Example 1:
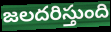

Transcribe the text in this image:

జలదరిస్తుంది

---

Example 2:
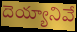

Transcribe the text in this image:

దెయ్యానివే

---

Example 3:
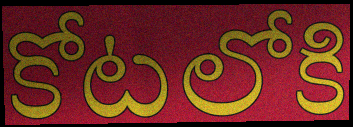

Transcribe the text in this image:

కోటలోకి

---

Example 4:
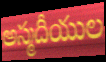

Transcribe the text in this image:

అస్మదీయుల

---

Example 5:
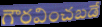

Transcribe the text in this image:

గౌరవించబడే